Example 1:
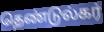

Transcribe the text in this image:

தெண்டுல்கர்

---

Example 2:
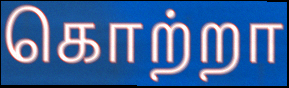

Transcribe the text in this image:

கொற்றா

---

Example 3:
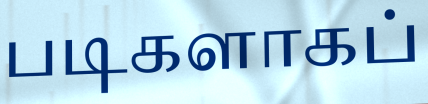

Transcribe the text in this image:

படிகளாகப்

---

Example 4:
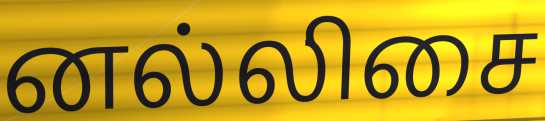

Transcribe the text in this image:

னல்லிசை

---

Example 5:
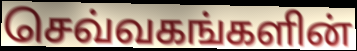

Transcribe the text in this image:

செவ்வகங்களின்